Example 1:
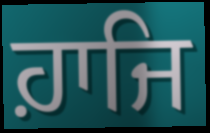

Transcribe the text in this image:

ਹ਼ਾਜਿ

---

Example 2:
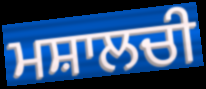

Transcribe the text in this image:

ਮਸ਼ਾਲਚੀ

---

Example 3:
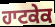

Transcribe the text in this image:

ਹਾਟਕੇਕ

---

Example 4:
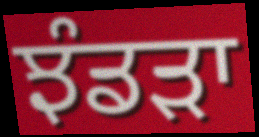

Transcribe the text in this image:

ਝੰਡੜਾ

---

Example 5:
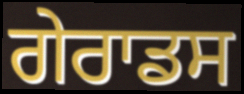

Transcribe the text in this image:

ਗੇਰਾਡਸ